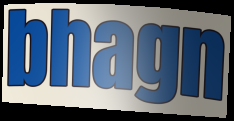
bhagn